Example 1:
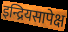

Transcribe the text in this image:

इन्द्रियसापेक्ष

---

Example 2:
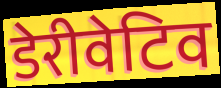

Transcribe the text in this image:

डेरीवेटिव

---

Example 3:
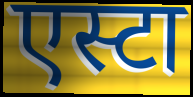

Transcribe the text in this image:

एस्टा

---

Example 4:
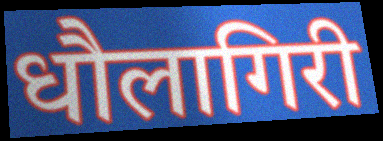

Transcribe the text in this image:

धौलागिरी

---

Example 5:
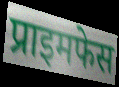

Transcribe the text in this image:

प्राइमफेस